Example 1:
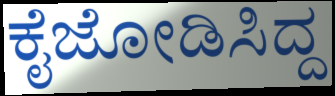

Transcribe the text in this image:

ಕೈಜೋಡಿಸಿದ್ದ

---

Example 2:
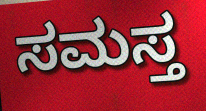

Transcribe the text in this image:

ಸಮಸ್ತ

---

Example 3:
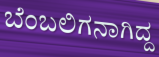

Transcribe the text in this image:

ಬೆಂಬಲಿಗನಾಗಿದ್ದ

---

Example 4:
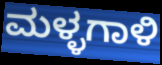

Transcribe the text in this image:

ಮಳ್ಳಗಾಳಿ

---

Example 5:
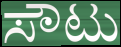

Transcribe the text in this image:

ಸೌಟು